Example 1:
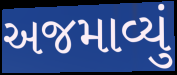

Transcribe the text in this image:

અજમાવ્યું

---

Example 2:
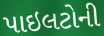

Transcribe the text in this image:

પાઇલટોની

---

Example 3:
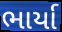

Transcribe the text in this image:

ભાર્યા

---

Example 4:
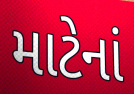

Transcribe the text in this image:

માટેનાં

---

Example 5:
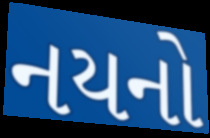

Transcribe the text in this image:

નયનો